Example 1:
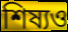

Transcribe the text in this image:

শিষ্যও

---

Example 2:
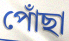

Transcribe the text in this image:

পোঁছা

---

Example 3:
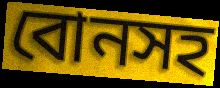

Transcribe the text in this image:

বোনসহ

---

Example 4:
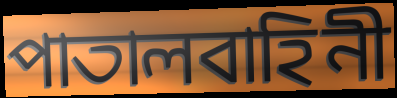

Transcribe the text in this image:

পাতালবাহিনী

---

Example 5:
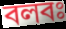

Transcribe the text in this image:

বলবঃ